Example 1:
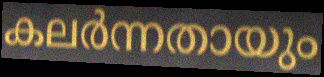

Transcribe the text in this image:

കലർന്നതായും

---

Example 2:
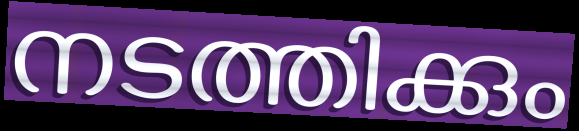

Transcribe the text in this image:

നടത്തിക്കും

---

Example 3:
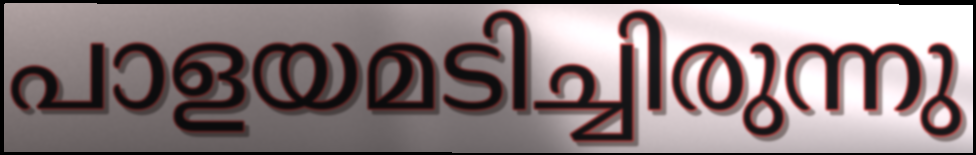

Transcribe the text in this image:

പാളയമടിച്ചിരുന്നു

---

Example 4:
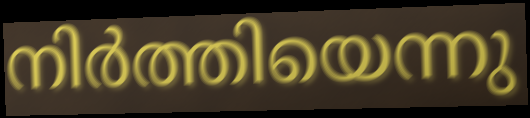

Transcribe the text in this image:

നിർത്തിയെന്നു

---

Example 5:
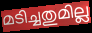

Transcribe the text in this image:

മടിച്ചതുമില്ല